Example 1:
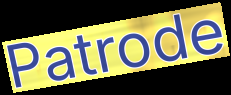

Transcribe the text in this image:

Patrode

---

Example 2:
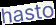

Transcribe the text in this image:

hasto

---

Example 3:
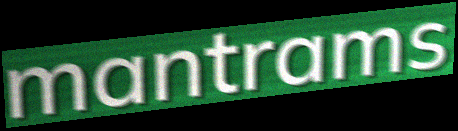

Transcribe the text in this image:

mantrams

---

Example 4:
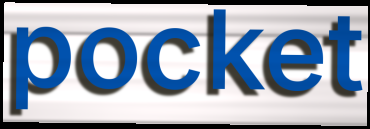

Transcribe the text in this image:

pocket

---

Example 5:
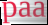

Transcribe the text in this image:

paa